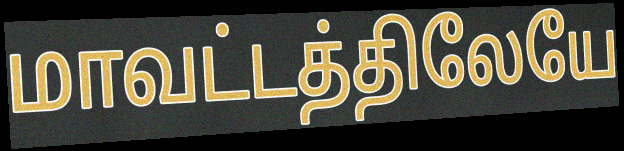
மாவட்டத்திலேயே